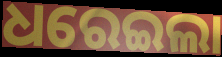
ଧରେଇଲା